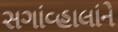
સગાંવ્હાલાંને